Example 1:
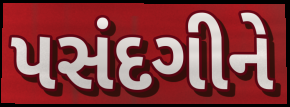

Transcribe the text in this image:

પસંદગીને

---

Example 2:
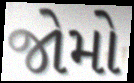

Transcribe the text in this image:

જોમો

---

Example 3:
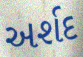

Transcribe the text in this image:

અર્શદ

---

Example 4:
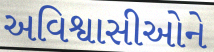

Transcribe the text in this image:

અવિશ્વાસીઓને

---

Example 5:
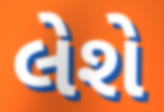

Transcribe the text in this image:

લેશે